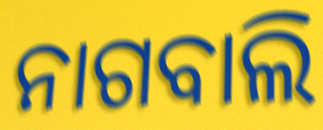
ନାଗବାଲି